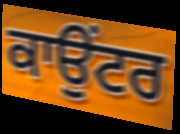
ਕਾਉਂਟਰ